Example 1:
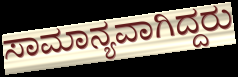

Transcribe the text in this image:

ಸಾಮಾನ್ಯವಾಗಿದ್ದರು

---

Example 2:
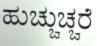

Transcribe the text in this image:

ಹುಚ್ಚುಚ್ಚರೆ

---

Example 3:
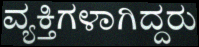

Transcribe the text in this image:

ವ್ಯಕ್ತಿಗಳಾಗಿದ್ದರು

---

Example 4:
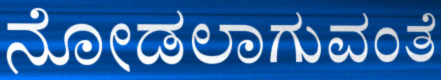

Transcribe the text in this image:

ನೋಡಲಾಗುವಂತೆ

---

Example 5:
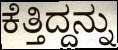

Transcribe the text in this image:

ಕೆತ್ತಿದ್ದನ್ನು